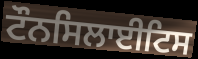
ਟੌਨਸਿਲਾਈਟਿਸ